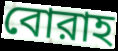
বোরাহ